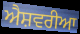
ਐਸ਼ਵਰੀਆ